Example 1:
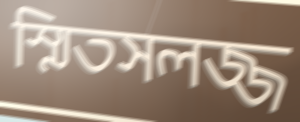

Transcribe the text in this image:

স্মিতসলজ্জ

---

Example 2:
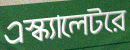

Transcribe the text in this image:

এস্ক্যালেটরে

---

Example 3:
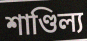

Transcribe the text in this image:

শাণ্ডিল্য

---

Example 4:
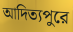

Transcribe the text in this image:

আদিত্যপুরে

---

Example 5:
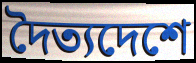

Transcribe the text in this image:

দৈত্যদেশে